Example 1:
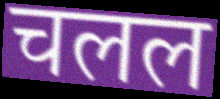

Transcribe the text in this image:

चलल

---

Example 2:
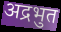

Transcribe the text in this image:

अद्रभुत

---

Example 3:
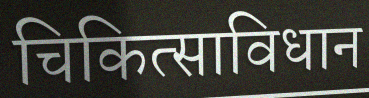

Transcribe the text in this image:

चिकित्साविधान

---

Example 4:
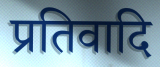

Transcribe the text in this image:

प्रतिवादि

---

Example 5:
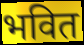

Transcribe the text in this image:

भवित